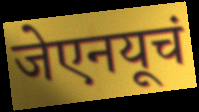
जेएनयूचं